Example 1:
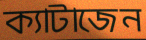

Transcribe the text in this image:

ক্যাটাজেন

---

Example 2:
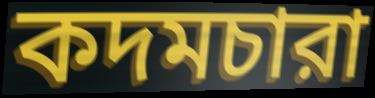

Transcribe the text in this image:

কদমচারা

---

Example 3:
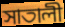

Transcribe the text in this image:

সাতালী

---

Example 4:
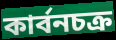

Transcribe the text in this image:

কার্বনচক্র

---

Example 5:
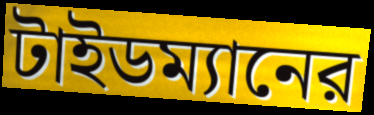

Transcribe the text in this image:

টাইডম্যানের